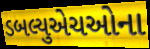
ડબલ્યુએચઓના